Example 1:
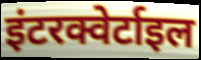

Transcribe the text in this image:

इंटरक्वेर्टाइल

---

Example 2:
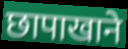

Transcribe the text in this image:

छापाखाने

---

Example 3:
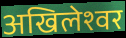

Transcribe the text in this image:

अखिलेश्वर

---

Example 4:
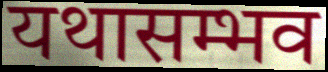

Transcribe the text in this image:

यथासम्भव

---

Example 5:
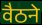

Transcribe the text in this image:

वैठने